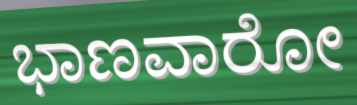
ಭಾಣವಾರೋ